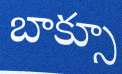
బాక్సూ